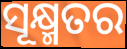
ସୂକ୍ଷ୍ମତର